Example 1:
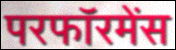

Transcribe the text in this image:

परफॉरमेंस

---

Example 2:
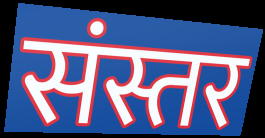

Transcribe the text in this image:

संस्तर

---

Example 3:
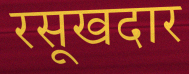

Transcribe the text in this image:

रसूखदार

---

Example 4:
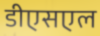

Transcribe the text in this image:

डीएसएल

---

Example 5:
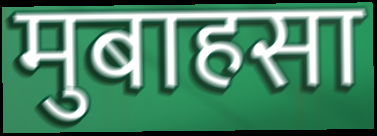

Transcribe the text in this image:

मुबाहसा